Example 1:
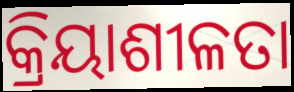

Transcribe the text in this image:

କ୍ରିୟାଶୀଳତା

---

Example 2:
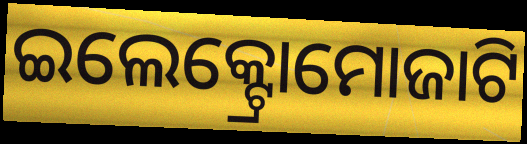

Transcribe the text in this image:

ଇଲେକ୍ଟ୍ରୋମୋଜାଟି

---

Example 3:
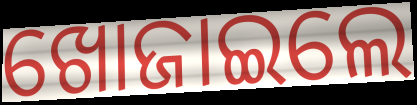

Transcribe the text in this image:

ଖୋଜାଇଲେ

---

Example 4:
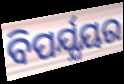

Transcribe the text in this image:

ବିପର୍ଯ୍ଯୟର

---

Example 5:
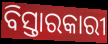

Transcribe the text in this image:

ବିସ୍ତାରକାରୀ